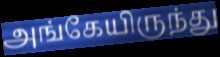
அங்கேயிருந்து